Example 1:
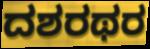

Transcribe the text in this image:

ದಶರಥರ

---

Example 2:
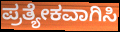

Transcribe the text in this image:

ಪ್ರತ್ಯೇಕವಾಗಿಸಿ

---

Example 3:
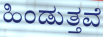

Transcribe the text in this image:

ಹಿಂಡುತ್ತವೆ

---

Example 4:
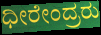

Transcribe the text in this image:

ಧೀರೇಂದ್ರರು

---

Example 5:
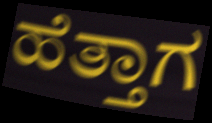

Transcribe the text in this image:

ಹೆತ್ತಾಗ